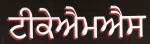
ਟੀਕੇਐਮਐਸ